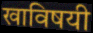
खाविषयी